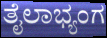
ತೈಲಾಭ್ಯಂಗ